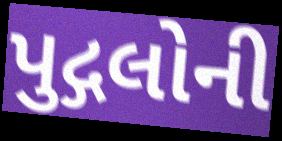
પુદ્ગલોની